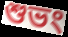
শুভং